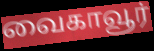
வைகாவூர்